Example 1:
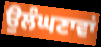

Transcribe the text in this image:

ਉਲੰਘਣਾਵਾਂ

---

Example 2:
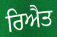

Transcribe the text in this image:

ਰਿਐਤ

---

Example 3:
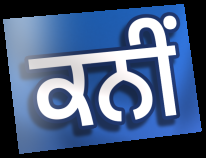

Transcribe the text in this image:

ਕਨੀਂ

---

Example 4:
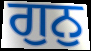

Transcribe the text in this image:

ਗੁਨੁ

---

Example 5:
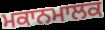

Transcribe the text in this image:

ਮਕਾਨਮਾਲਕ